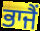
ਭਾਜੈਂ